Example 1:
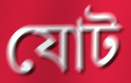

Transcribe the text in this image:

যোট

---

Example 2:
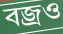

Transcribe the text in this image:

বজ্রও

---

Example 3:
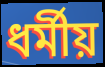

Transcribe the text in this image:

ধর্মীয়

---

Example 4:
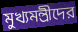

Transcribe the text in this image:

মুখ্যমন্ত্রীদের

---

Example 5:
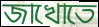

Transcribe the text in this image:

জাখোতে